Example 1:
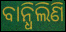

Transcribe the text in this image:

ବାନ୍ଧିଲିଣି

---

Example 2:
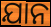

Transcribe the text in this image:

ଯାନ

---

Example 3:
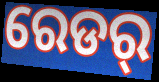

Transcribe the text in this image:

ରେଡର୍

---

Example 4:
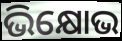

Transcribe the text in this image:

ଭିକ୍ଷୋଭ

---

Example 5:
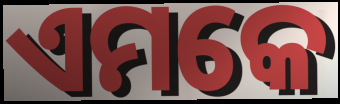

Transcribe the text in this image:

ଏମକେ